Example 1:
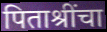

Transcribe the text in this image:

पिताश्रींचा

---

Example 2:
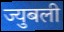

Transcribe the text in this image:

ज्युबली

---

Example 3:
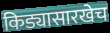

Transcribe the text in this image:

किड्यासारखेच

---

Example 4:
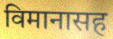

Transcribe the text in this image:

विमानासह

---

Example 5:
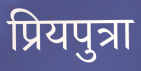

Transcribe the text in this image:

प्रियपुत्रा